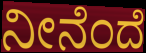
ನೀನೆಂದೆ